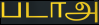
படாஅ